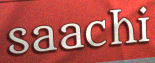
saachi